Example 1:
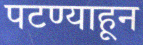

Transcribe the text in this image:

पटण्याहून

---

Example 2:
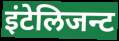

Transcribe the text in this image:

इंटेलिजन्ट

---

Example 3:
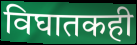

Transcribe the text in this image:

विघातकही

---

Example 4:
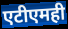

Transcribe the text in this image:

एटीएमही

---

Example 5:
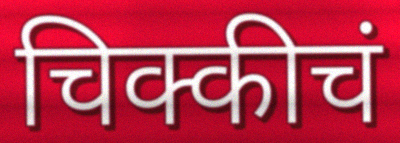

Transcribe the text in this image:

चिक्कीचं